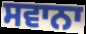
ਸਵਾਨਾ